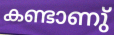
കണ്ടാണു്